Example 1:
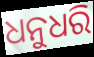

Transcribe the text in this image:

ଧନୁଧରି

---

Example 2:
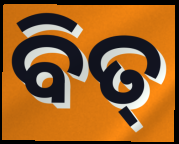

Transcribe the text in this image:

ବିତ୍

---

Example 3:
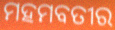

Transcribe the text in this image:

ମହମବତୀର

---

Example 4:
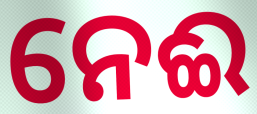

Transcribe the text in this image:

ନେଈ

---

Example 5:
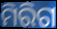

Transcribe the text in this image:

ମିରିଗ